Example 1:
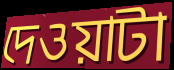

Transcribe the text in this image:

দেওয়াটা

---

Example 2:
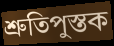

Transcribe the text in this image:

শ্রুতিপুস্তক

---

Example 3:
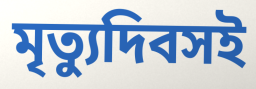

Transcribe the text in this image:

মৃত্যুদিবসই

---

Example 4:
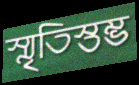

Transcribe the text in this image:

স্মৃতিস্তম্ভ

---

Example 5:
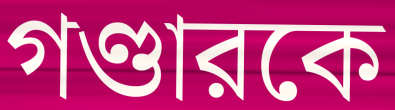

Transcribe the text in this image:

গণ্ডারকে